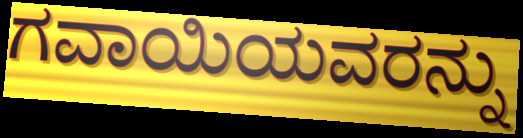
ಗವಾಯಿಯವರನ್ನು